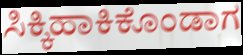
ಸಿಕ್ಕಿಹಾಕಿಕೊಂಡಾಗ